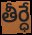
తీర్ధే